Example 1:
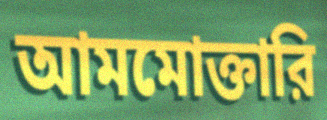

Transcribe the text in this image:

আমমোক্তারি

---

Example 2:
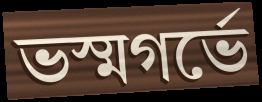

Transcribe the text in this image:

ভস্মগর্ভে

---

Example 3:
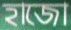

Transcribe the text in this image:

হাজো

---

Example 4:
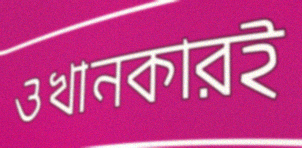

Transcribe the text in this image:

ওখানকারই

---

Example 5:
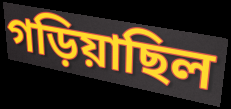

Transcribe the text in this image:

গড়িয়াছিল